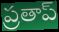
ప్రతాప్